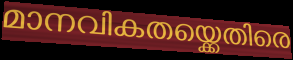
മാനവികതയ്ക്കെതിരെ